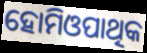
ହୋମିଓପାଥିକ